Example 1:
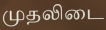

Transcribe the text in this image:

முதலிடை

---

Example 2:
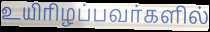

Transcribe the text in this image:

உயிரிழப்பவர்களில்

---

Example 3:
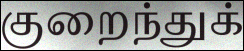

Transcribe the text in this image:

குறைந்துக்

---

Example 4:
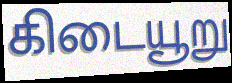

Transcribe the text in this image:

கிடையூறு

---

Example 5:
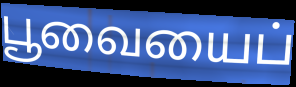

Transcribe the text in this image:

பூவையைப்